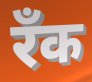
रँक